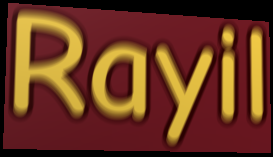
Rayil